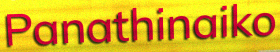
Panathinaiko